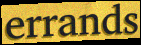
errands